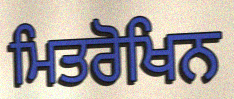
ਮਿਤਰੋਖਿਨ